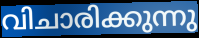
വിചാരിക്കുന്നു